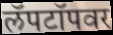
लॅपटॉपवर